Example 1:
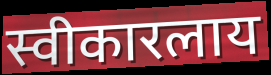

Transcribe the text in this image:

स्वीकारलाय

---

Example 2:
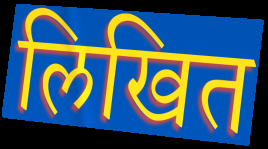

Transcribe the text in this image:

लिखित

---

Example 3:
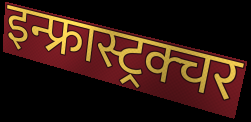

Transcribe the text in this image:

इन्फ्रास्ट्रक्‍चर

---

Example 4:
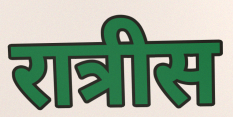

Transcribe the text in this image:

रात्रीस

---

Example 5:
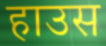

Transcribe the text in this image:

हाउस